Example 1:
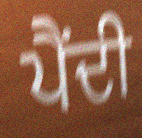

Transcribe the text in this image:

ਪੈਂਦੀ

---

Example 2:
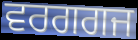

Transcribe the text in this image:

ਵਰਗਗਜ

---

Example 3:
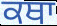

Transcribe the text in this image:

ਕਥਾ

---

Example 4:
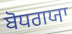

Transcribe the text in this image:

ਬੋਧਗਯਾ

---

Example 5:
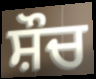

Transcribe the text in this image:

ਸ਼ੌਚ